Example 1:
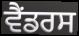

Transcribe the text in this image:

ਵੈਂਡਰਸ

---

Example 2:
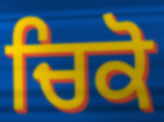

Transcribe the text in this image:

ਚਿਕੋ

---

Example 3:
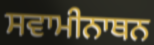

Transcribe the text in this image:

ਸਵਾਮੀਨਾਥਨ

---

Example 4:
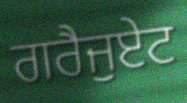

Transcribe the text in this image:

ਗਰੈਜੁਏਟ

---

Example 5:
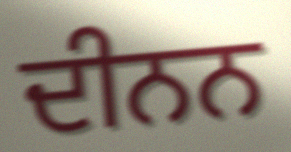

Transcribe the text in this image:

ਦੀਨਨ